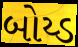
બોય્ડ